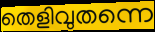
തെളിവുതന്നെ